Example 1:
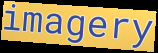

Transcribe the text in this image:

imagery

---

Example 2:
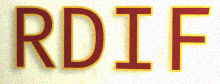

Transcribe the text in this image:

RDIF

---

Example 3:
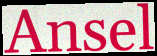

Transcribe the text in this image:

Ansel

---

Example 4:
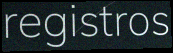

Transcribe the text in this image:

registros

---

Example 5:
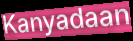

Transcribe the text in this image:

Kanyadaan